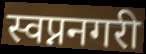
स्वप्ननगरी